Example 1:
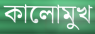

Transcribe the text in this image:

কালোমুখ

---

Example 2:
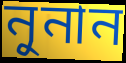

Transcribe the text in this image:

নুনান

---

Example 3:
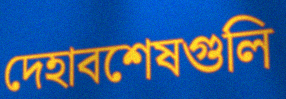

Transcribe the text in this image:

দেহাবশেষগুলি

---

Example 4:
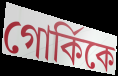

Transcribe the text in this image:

গোর্কিকে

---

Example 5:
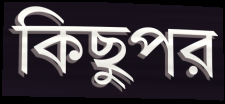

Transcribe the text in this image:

কিছুপর